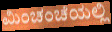
ಮಿಂಚಂಚೆಯಲ್ಲಿ